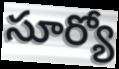
సూర్యో